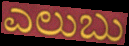
ಎಲುಬು